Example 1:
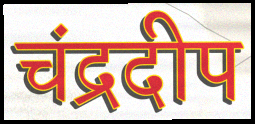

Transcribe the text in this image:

चंद्रदीप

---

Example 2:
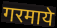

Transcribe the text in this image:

गरमाये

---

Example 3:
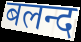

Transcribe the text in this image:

बलन्द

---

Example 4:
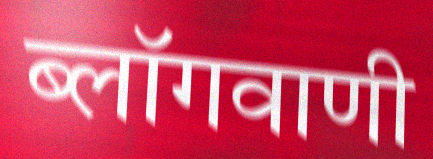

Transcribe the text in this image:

ब्लॉगवाणी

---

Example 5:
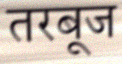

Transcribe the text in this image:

तरबूज